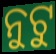
ନୁଟୁ